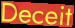
Deceit